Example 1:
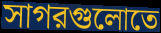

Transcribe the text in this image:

সাগরগুলোতে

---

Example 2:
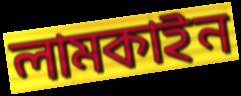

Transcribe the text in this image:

লামকাইন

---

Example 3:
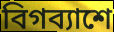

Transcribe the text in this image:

বিগব্যাশে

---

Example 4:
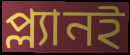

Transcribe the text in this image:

প্ল্যানই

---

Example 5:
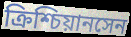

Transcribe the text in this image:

ক্রিশ্চিয়ানসেন